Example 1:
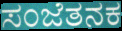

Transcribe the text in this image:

ಸಂಜೆತನಕ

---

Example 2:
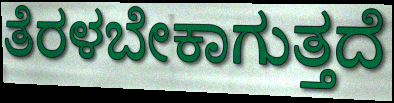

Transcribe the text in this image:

ತೆರಳಬೇಕಾಗುತ್ತದೆ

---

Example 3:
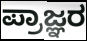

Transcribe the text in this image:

ಪ್ರಾಜ್ಞರ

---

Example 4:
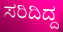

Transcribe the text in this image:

ಸರಿದಿದ್ದ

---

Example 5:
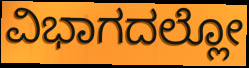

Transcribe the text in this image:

ವಿಭಾಗದಲ್ಲೋ